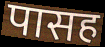
पासह